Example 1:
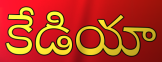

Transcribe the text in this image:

కేడియా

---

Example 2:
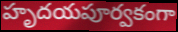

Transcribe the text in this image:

హృదయపూర్వకంగా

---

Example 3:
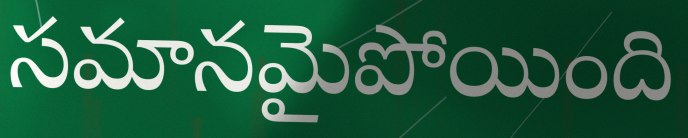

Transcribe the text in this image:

సమానమైపోయింది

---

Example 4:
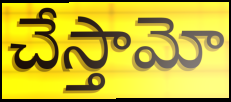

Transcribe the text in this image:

చేస్తామో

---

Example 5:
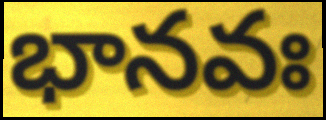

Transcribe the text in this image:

భానవః